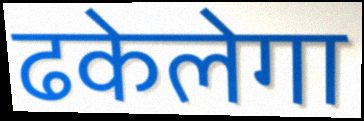
ढकेलेगा